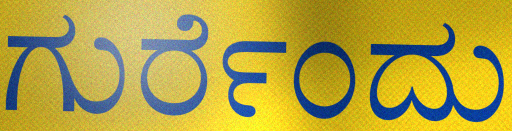
ಗುರ್ರೆಂದು